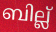
ബില്ല്